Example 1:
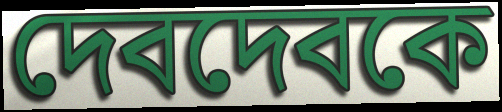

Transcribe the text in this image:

দেবদেবকে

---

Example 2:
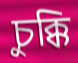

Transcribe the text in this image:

চুক্কি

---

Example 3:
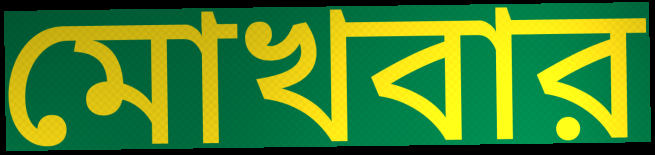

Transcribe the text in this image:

মোখবার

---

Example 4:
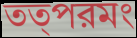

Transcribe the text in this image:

তত্পরমং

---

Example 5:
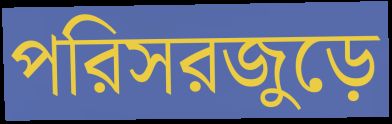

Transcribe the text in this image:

পরিসরজুড়ে